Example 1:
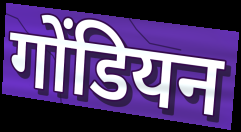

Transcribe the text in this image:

गोंडियन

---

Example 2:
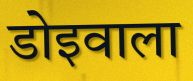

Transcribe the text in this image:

डोइवाला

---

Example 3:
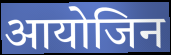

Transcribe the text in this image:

आयोजिन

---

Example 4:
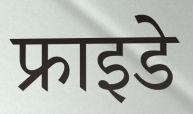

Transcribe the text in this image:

फ्राइडे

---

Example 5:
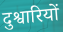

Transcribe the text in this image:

दुश्वारियों